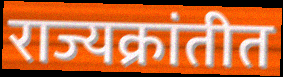
राज्यक्रांतीत